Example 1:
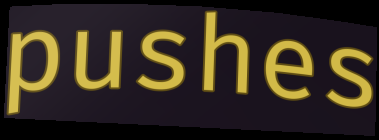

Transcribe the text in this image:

pushes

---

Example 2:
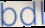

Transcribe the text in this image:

bdl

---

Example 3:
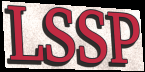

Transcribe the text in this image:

LSSP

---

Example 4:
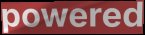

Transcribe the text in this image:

powered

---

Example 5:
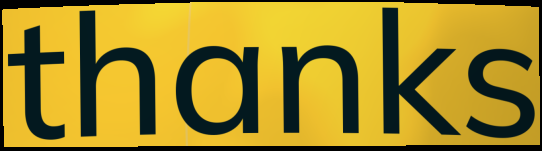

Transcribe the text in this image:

thanks